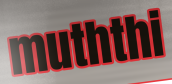
muththi